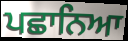
ਪਛਾਨਿਆ